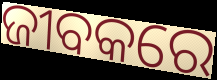
ଜୀବକରେ